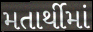
મતાર્થીમાં